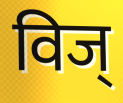
विज्